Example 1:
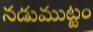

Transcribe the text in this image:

నడుముట్టం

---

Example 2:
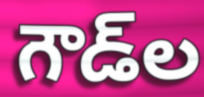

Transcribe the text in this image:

గౌడ్‌ల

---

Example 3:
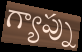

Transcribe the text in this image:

గ్యాప్ను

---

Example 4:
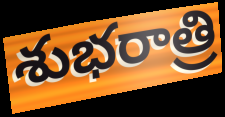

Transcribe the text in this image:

శుభరాత్రి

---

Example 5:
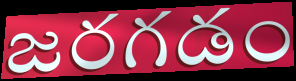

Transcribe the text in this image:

జరగడం